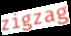
zigzag